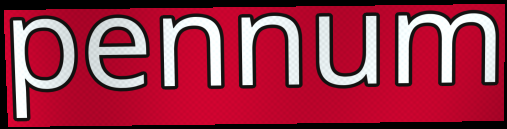
pennum